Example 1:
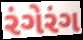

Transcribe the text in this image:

રંગેરંગ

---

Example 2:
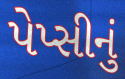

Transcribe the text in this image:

પેપ્સીનું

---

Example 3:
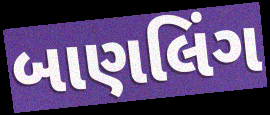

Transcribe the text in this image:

બાણલિંગ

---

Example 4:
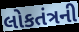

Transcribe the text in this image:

લોકતંત્રની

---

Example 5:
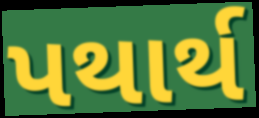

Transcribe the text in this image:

પથાર્થ